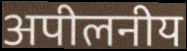
अपीलनीय